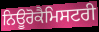
ਨਿਊਰੋਕੈਮਿਸਟਰੀ